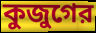
কুজুগের